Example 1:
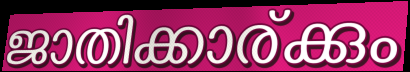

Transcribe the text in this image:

ജാതിക്കാര്ക്കും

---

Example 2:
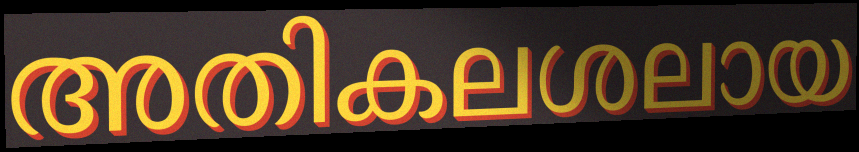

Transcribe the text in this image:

അതികലശലായ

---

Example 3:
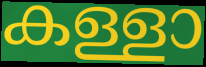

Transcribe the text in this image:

കള്ളാ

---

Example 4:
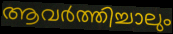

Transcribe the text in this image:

ആവർത്തിച്ചാലും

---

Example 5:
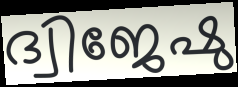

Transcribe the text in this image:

ദ്വിജേഷു